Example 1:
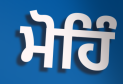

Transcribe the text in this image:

ਮੋਹਿੰ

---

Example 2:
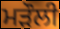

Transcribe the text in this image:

ਮੜੌਲੀ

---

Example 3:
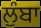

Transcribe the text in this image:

ਲੁੰਬਾ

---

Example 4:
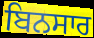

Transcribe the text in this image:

ਬਿਨਸਾਰ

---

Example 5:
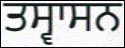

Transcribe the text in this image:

ਤਸ੍ਵਾਸਨ